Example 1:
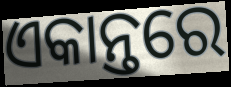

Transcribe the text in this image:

ଏକାନ୍ତରେ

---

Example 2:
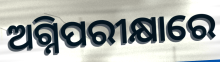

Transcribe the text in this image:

ଅଗ୍ନିପରୀକ୍ଷାରେ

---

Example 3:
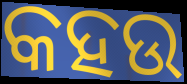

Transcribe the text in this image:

କହଉ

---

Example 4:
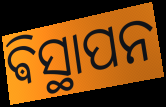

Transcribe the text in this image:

ଵିସ୍ଥାପନ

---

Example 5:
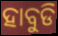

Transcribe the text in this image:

ହାବୁଡି